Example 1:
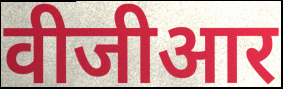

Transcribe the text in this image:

वीजीआर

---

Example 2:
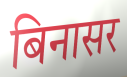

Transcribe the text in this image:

बिनासर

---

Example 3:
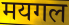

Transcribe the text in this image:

मयगल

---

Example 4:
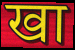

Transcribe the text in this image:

खा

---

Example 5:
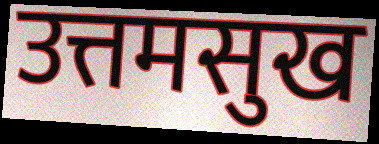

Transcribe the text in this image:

उत्तमसुख